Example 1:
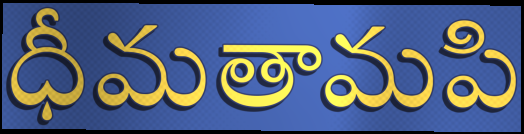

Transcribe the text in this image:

ధీమతామపి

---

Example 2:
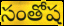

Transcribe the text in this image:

సంతోష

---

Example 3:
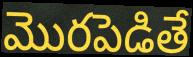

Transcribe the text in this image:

మొరపెడితే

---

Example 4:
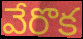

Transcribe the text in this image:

వేరొక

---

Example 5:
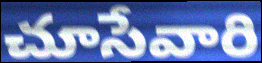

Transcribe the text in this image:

చూసేవారి